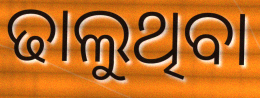
ଢାଲୁଥିବା